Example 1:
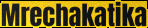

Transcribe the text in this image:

Mrechakatika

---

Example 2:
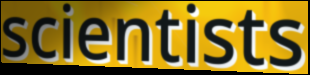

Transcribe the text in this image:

scientists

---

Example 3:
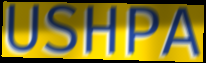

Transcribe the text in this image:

USHPA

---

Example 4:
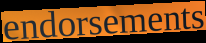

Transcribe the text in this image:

endorsements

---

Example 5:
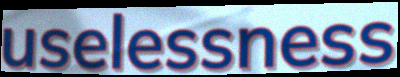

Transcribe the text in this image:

uselessness